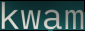
kwam